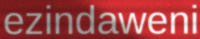
ezindaweni